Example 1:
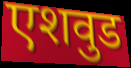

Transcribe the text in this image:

एशवुड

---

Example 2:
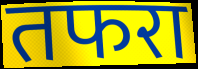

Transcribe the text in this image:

तफरा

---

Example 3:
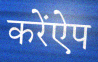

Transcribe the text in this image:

करेंऐप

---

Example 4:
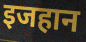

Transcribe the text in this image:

इजहान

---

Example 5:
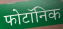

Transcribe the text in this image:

फोटॉनिक